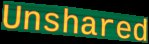
Unshared